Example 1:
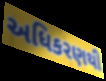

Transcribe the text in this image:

અધિકરણથી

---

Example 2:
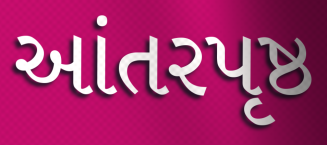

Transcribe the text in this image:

આંતરપૃષ્ઠ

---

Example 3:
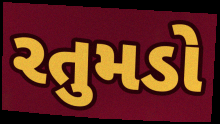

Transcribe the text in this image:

રતુમડો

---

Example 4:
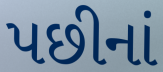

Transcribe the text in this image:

પછીનાં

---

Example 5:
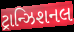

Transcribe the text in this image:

ટ્રાન્ઝિશનલ